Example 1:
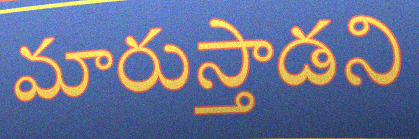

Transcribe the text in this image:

మారుస్తాడని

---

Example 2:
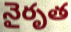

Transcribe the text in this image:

నైరృత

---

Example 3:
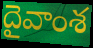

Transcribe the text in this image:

దైవాంశ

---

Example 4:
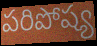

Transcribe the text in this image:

పరిపోష్య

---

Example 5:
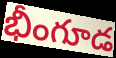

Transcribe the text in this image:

భీంగూడ